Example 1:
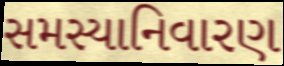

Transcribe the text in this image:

સમસ્યાનિવારણ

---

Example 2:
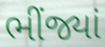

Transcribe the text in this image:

ભીંજ્યાં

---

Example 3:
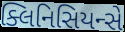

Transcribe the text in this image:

ક્લિનિસિયન્સે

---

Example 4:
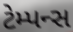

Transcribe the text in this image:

ટેમ્પન્સ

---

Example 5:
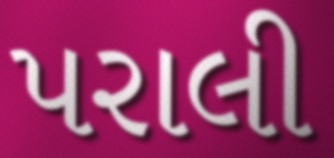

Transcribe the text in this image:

પરાલી